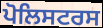
ਪੋਲਿਸਟਰਸ